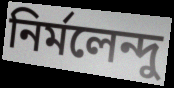
নির্মলেন্দু